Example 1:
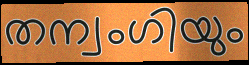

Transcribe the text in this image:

തന്വംഗിയും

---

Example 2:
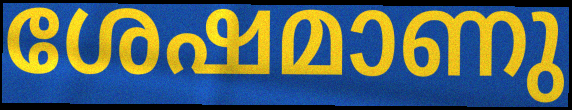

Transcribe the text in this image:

ശേഷമാണു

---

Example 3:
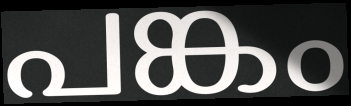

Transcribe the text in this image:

പങ്കം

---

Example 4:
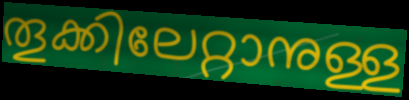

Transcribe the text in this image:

തൂക്കിലേറ്റാനുള്ള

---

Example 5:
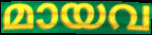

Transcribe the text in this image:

മായവ